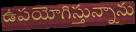
ఉపయోగిస్తున్నాను